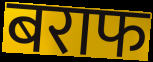
बराफ